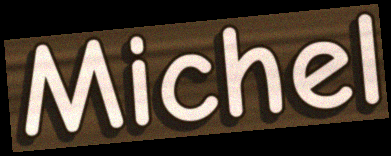
Michel